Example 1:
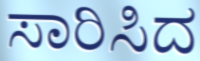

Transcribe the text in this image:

ಸಾರಿಸಿದ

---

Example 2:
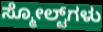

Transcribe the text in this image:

ಸ್ಮೋಲ್ಟ್‌ಗಳು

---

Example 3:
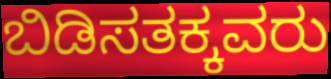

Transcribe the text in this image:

ಬಿಡಿಸತಕ್ಕವರು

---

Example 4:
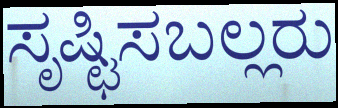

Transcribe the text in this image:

ಸೃಷ್ಟಿಸಬಲ್ಲರು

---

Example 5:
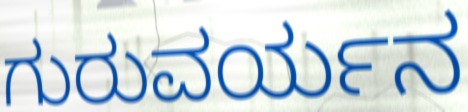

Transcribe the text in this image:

ಗುರುವರ್ಯನ